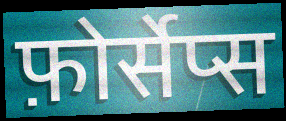
फ़ोर्सेप्स